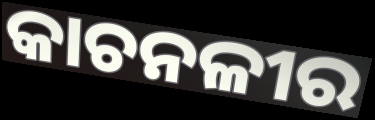
କାଚନଳୀର